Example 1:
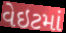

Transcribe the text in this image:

વેઇટમાં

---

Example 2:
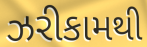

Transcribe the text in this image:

ઝરીકામથી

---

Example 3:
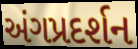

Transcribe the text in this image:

અંગપ્રદર્શન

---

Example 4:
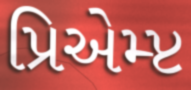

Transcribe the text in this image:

પ્રિએમ્પ્ટ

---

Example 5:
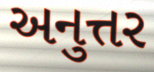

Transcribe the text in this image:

અનુત્તર